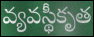
వ్యవస్థీకృత